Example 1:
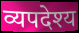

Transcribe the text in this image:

व्यपदेश्य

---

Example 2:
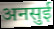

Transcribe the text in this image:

अनसुई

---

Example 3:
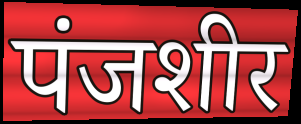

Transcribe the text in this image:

पंजशीर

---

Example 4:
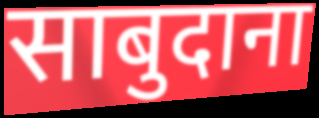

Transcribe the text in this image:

साबुदाना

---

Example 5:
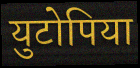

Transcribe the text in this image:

युटोपिया